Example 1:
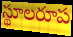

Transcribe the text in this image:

స్థూలరూప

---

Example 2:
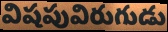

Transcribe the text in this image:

విషపువిరుగుడు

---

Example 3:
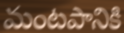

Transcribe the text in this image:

మంటపానికి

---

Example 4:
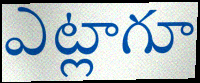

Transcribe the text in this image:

ఎట్లాగూ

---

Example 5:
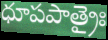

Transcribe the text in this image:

ధూపపాత్రైః